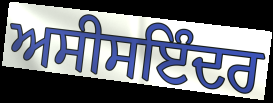
ਅਸੀਸਇੰਦਰ